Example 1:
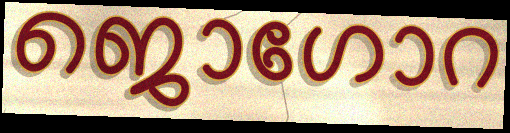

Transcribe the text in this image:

ജൊഗോറ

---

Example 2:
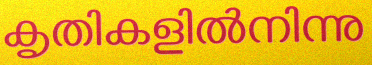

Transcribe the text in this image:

കൃതികളിൽനിന്നു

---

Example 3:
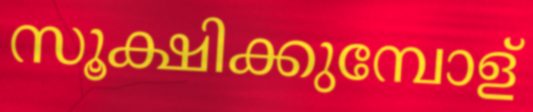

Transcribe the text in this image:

സൂക്ഷിക്കുമ്പോള്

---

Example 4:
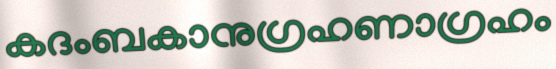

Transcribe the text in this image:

കദംബകാനുഗ്രഹണാഗ്രഹം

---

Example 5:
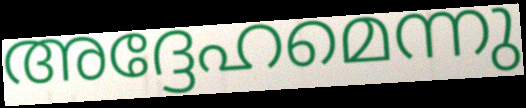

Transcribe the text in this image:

അദ്ദേഹമെന്നു